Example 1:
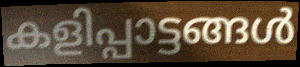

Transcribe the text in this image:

കളിപ്പാട്ടങ്ങൾ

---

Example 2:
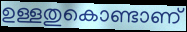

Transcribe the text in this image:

ഉള്ളതുകൊണ്ടാണ്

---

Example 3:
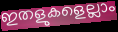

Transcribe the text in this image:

ഇതളുകളെല്ലാം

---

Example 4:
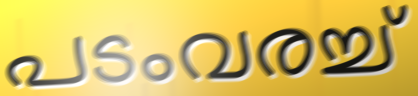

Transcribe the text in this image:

പടംവരച്ച്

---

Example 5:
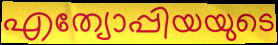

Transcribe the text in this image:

എത്യോപ്പിയയുടെ